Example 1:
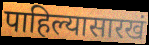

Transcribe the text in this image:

पाहिल्यासारखं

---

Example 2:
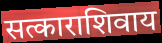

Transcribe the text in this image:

सत्काराशिवाय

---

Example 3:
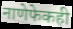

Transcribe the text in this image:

नाणेफेकही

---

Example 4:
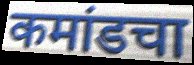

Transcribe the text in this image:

कमांडचा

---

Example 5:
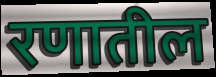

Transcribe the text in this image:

रणातील